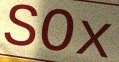
SOx